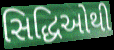
સિદ્ધિઓથી